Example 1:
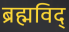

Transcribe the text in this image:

ब्रह्मविद्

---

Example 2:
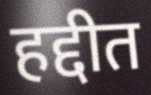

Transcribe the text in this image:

हद्दीत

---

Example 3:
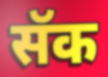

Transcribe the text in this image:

सॅक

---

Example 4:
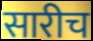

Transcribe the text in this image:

सारीच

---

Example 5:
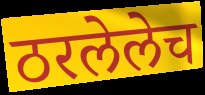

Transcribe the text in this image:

ठरलेलेच